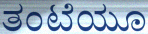
ತಂಟೆಯೂ